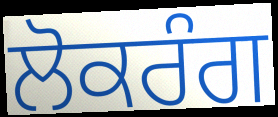
ਲੋਕਰੰਗ